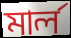
মার্ল